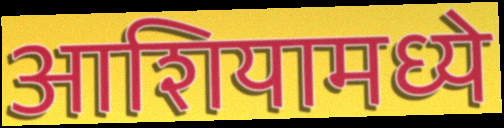
आशियामध्ये